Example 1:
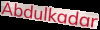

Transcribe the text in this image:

Abdulkadar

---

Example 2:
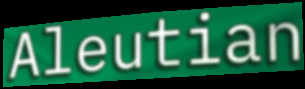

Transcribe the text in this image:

Aleutian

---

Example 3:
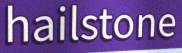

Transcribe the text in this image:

hailstone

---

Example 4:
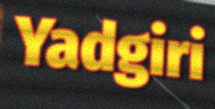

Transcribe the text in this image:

Yadgiri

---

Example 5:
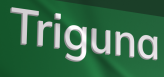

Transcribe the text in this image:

Triguna